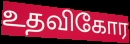
உதவிகோர